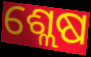
ଶ୍ଲେଷ